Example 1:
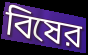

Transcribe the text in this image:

বিষের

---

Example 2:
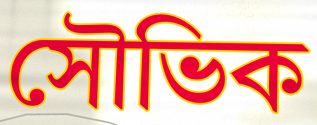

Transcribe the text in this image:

সৌভিক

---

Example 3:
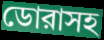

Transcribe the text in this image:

ডোরাসহ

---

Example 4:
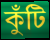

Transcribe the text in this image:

কুঁটি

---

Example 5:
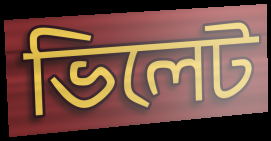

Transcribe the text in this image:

ভিলেট